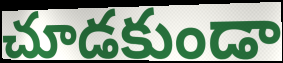
చూడకుండా